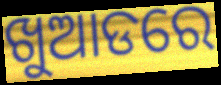
ଖୁଆଡରେ